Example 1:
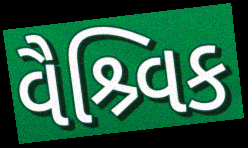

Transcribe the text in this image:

વૈશ્ર્વિક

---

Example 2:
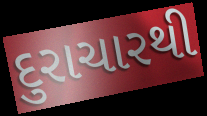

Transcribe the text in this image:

દુરાચારથી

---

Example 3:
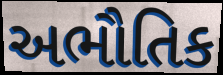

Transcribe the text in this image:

અભૌતિક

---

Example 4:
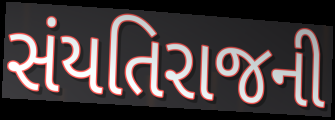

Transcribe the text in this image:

સંયતિરાજની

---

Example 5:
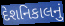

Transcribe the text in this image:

દેશનિકાલનું